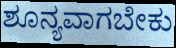
ಶೂನ್ಯವಾಗಬೇಕು